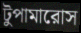
টুপামারোস